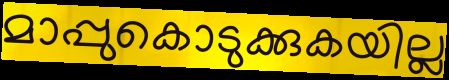
മാപ്പുകൊടുക്കുകയില്ല